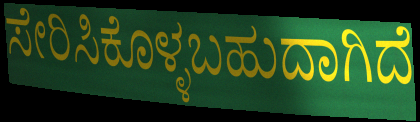
ಸೇರಿಸಿಕೊಳ್ಳಬಹುದಾಗಿದೆ